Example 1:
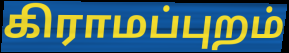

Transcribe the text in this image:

கிராமப்புறம்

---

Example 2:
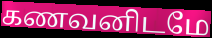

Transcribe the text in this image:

கணவனிடமே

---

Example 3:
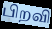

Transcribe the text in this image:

பிறவி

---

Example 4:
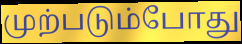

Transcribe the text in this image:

முற்படும்போது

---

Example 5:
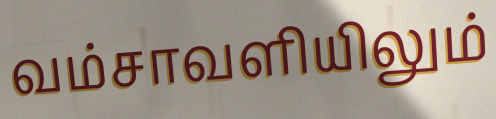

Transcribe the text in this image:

வம்சாவளியிலும்